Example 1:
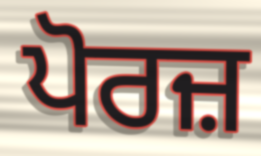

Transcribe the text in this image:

ਪੋਰਜ਼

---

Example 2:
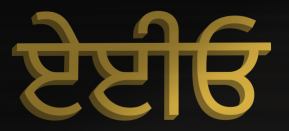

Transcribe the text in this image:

ਏਈਓ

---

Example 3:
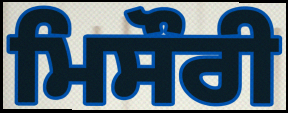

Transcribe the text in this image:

ਮਿਸੌਰੀ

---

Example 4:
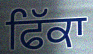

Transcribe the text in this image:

ਫਿੱਕਾ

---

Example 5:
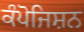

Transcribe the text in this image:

ਕੰਪੋਜਿਸ਼ਨ